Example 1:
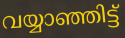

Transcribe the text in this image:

വയ്യാഞ്ഞിട്ട്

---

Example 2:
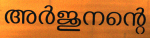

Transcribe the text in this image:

അർജുനന്റെ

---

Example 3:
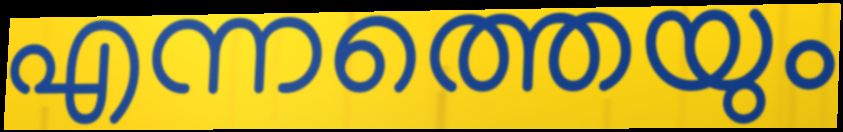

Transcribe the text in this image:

എന്നത്തെയും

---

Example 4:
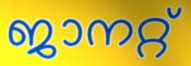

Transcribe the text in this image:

ജാനറ്റ്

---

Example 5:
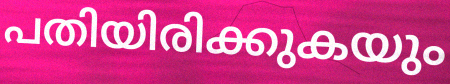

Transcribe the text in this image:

പതിയിരിക്കുകയും